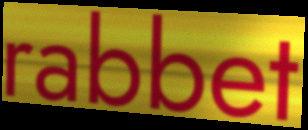
rabbet